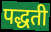
पद्धती